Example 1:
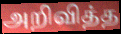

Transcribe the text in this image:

அறிவித்த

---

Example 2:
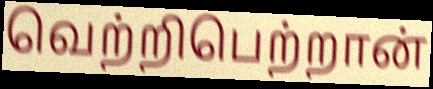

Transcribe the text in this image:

வெற்றிபெற்றான்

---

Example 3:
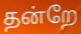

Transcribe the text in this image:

தன்றே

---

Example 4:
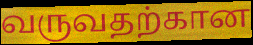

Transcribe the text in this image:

வருவதற்கான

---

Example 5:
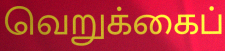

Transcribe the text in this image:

வெறுக்கைப்